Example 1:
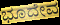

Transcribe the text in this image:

ಭೂದೇವ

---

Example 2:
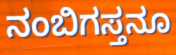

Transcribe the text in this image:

ನಂಬಿಗಸ್ತನೂ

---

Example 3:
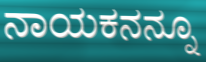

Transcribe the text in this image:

ನಾಯಕನನ್ನೂ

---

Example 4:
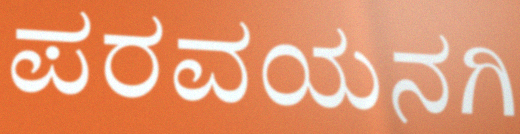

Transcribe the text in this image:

ಪರವಯನಗಿ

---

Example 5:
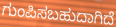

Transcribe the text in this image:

ಗುಂಪಿಸಬಹುದಾಗಿದೆ